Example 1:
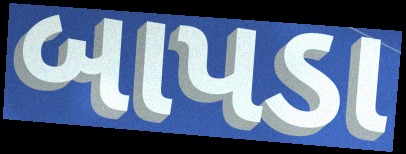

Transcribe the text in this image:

બાપડા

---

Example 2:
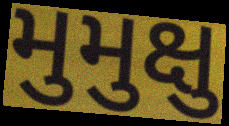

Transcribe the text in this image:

મુમુક્ષુ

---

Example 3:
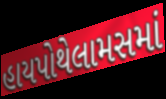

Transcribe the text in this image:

હાયપોથેલામસમાં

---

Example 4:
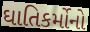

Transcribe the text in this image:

ઘાતિકર્મોનો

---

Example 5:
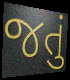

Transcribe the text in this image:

જતું